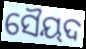
ସୈୟଦ